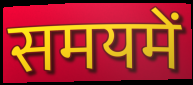
समयमें